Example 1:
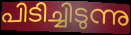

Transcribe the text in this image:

പിടിച്ചിടുന്നു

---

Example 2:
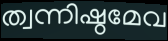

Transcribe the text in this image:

ത്വന്നിഷ്ഠമേവ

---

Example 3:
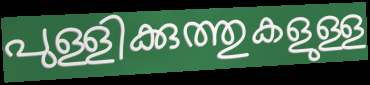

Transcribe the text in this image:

പുള്ളിക്കുത്തുകളുള്ള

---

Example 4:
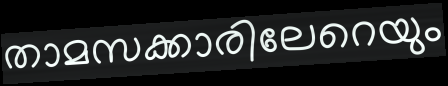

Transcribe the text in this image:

താമസക്കാരിലേറെയും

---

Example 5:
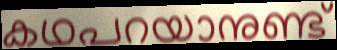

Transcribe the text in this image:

കഥപറയാനുണ്ട്